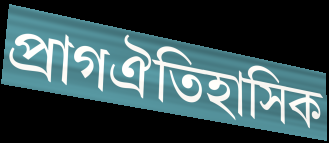
প্ৰাগঐতিহাসিক